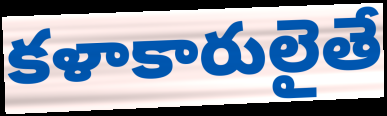
కళాకారులైతే